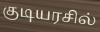
குடியரசில்